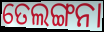
ତେଲଙ୍ଗନା